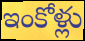
ఇంకోళ్లు